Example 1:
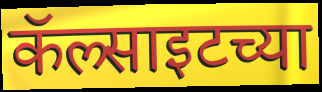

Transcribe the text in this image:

कॅल्साइटच्या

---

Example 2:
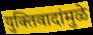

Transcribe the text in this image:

युक्तिवादांमुळे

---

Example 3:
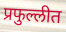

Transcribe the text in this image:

प्रफुल्लीत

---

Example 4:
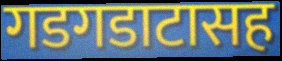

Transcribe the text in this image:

गडगडाटासह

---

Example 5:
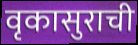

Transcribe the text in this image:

वृकासुराची